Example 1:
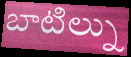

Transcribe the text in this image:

బాటిల్ను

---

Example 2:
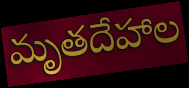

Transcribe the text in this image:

మృతదేహాల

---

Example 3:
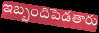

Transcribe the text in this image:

ఇబ్బందిపెడతారు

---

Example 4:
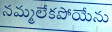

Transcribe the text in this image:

నమ్మలేకపోయేను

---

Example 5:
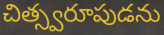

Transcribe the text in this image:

చిత్స్వరూపుడను